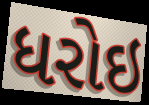
ધરોઇ